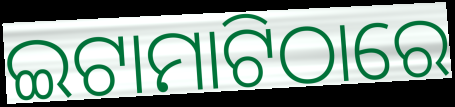
ଇଟାମାଟିଠାରେ